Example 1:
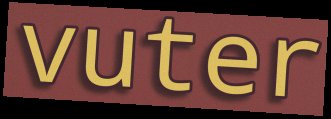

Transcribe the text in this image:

vuter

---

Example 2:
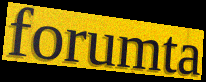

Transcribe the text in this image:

forumta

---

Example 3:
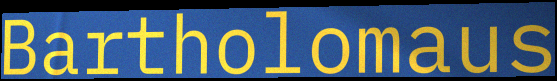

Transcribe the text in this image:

Bartholomaus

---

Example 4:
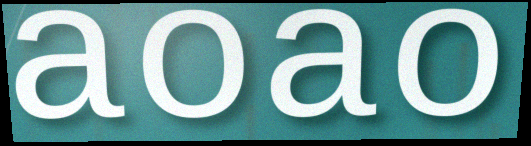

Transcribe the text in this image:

aoao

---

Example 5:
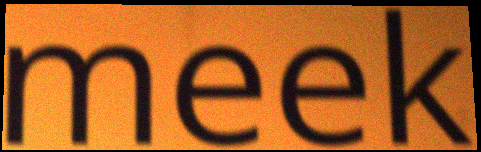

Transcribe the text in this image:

meek